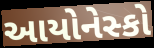
આયોનેસ્કો